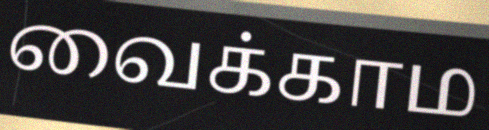
வைக்காம